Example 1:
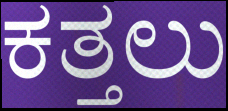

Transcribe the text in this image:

ಕತ್ತಲು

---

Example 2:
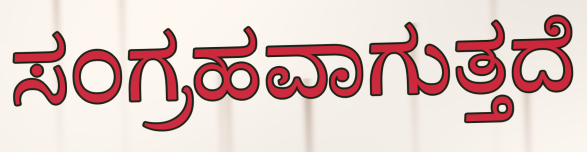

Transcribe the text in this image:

ಸಂಗ್ರಹವಾಗುತ್ತದೆ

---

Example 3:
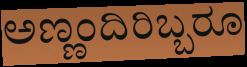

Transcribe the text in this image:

ಅಣ್ಣಂದಿರಿಬ್ಬರೂ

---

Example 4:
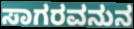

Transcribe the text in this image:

ಸಾಗರವನುನ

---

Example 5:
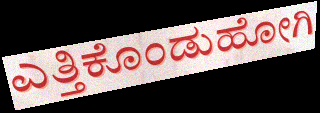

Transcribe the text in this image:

ಎತ್ತಿಕೊಂಡುಹೋಗಿ